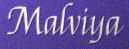
Malviya